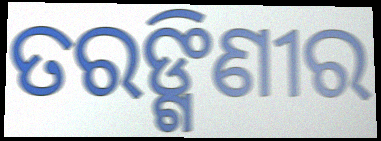
ତରଙ୍ଗିଣୀର